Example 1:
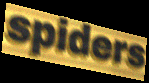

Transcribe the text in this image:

spiders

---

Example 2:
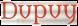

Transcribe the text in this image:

Dupuy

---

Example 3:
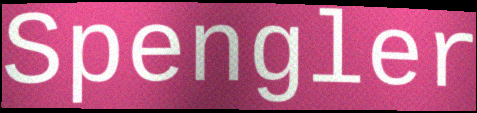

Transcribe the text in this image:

Spengler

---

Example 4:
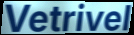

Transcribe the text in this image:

Vetrivel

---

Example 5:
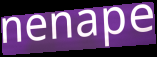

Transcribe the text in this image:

nenape